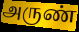
அருண்